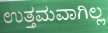
ಉತ್ತಮವಾಗಿಲ್ಲ